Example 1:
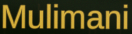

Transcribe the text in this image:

Mulimani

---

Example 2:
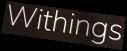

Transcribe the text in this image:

Withings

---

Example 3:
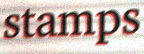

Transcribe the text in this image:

stamps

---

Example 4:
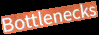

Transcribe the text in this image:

Bottlenecks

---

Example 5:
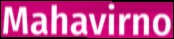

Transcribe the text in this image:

Mahavirno